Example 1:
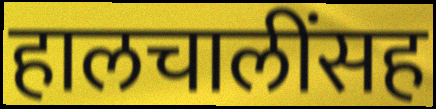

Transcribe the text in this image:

हालचालींसह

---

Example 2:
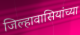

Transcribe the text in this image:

जिल्हावासियांच्या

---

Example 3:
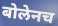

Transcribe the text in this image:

बोलेनच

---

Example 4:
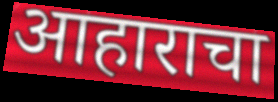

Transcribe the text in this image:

आहाराचा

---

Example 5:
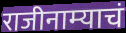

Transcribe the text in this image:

राजीनाम्याचं